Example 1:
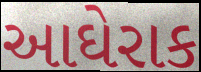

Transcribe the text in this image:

આઘેરાક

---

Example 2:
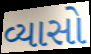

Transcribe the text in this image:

વ્યાસો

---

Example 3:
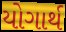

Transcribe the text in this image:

યોગાર્થ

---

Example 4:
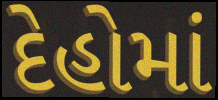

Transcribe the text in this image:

દેહોમાં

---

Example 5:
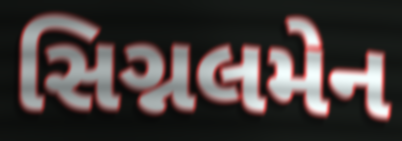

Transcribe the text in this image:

સિગ્નલમેન